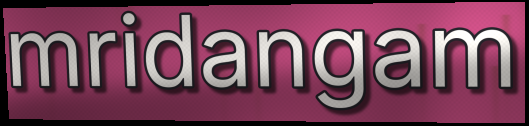
mridangam